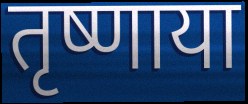
तृष्णाया